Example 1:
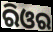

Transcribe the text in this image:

ରିଓର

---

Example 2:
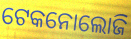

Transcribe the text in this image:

ଟେକନୋଲୋଜି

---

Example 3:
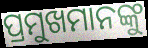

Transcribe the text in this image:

ପ୍ରମୁଖମାନଙ୍କୁ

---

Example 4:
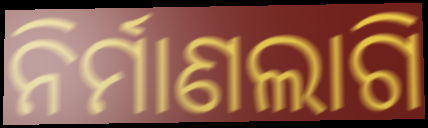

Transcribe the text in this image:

ନିର୍ମାଣଲାଗି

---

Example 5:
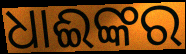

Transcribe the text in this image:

ଧାଈଙ୍କର